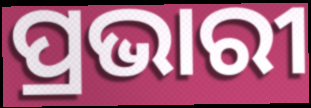
ପ୍ରଭାରୀ